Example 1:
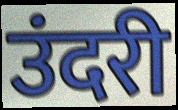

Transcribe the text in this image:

उंदरी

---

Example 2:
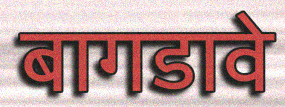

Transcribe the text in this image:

बागडावे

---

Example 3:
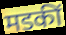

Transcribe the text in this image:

मडकीं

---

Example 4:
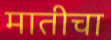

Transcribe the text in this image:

मातीचा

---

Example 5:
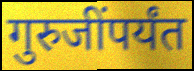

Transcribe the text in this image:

गुरुजींपर्यंत